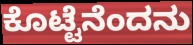
ಕೊಟ್ಟೆನೆಂದನು